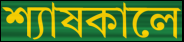
শ্যাষকালে